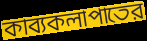
কাব্যকলাপাতের